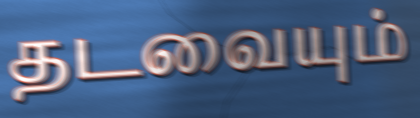
தடவையும்